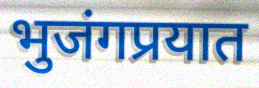
भुजंगप्रयात